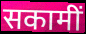
सकामीं